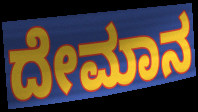
ದೇಮಾನ